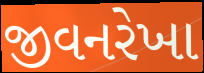
જીવનરેખા